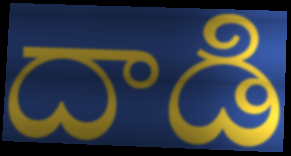
దాడి